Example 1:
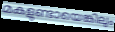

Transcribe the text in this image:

മകളുണ്ടായെങ്കിലും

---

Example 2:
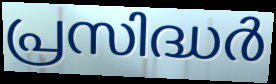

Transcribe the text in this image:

പ്രസിദ്ധർ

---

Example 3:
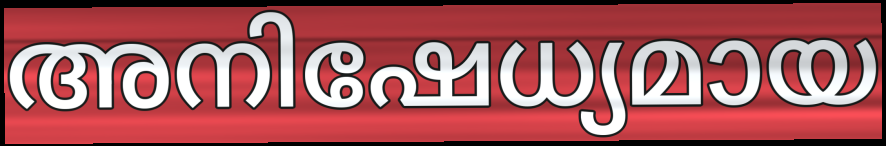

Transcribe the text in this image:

അനിഷേധ്യമായ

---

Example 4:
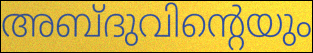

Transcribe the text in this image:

അബ്ദുവിന്റെയും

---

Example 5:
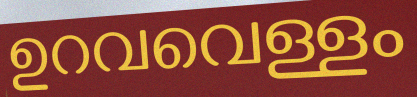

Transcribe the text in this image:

ഉറവവെള്ളം